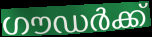
ഗൗഡർക്ക്